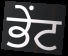
ਭੇਂਟ